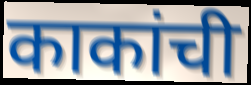
काकांची